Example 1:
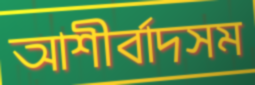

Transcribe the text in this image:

আশীর্বাদসম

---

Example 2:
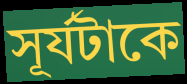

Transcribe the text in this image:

সূর্যটাকে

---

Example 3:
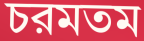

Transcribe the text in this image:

চরমতম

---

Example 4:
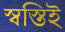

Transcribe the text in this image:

স্বস্তিই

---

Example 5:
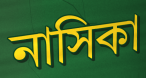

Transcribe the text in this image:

নাসিকা